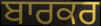
ਬਾਰਕਰ